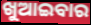
ଖୁଆଇବାର